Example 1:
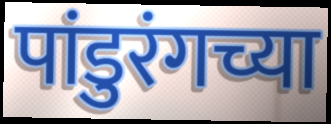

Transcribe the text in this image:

पांडुरंगच्या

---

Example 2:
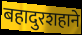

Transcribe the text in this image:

बहादुरशहाने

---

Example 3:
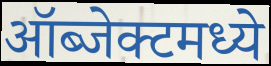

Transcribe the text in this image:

ऑब्जेक्टमध्ये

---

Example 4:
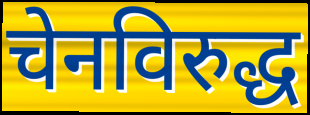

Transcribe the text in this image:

चेनविरुद्ध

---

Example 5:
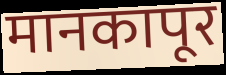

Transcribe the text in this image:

मानकापूर